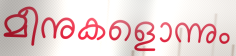
മീനുകളൊന്നും